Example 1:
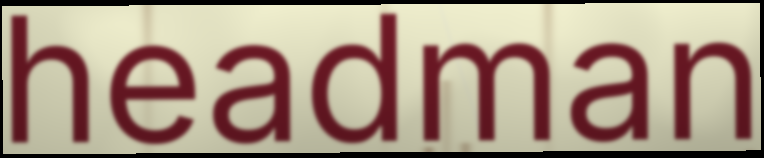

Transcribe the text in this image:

headman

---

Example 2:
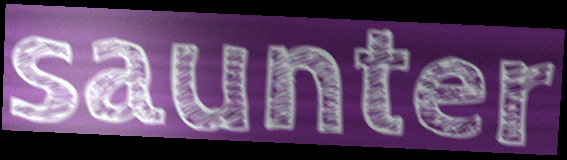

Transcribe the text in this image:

saunter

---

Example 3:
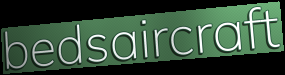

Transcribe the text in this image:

bedsaircraft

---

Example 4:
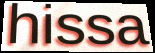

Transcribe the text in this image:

hissa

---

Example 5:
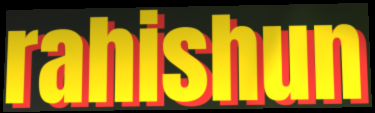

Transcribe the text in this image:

rahishun